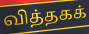
வித்தகக்